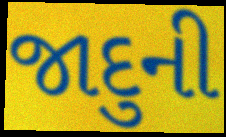
જાદુની